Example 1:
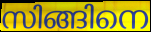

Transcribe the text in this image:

സിങ്ങിനെ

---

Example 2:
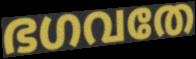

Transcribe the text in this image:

ഭഗവതേ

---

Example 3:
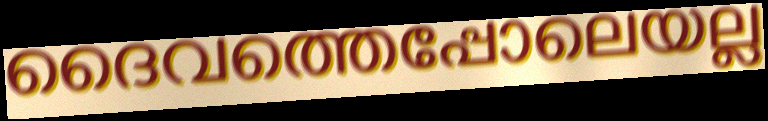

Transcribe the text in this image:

ദൈവത്തെപ്പോലെയല്ല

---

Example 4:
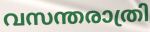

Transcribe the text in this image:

വസന്തരാത്രി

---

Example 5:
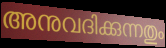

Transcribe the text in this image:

അനുവദിക്കുന്നതും